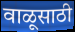
वाळूसाठी